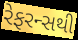
રેફરન્સથી